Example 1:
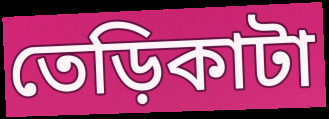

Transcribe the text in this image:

তেড়িকাটা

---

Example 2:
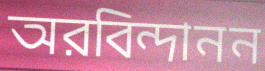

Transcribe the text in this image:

অরবিন্দানন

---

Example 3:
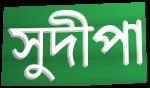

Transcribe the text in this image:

সুদীপা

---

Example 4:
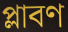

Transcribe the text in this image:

প্লাবণ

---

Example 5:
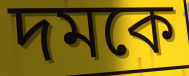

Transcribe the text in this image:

দমকে